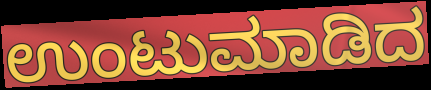
ಉಂಟುಮಾಡಿದ